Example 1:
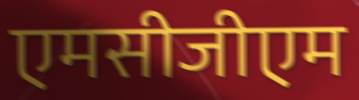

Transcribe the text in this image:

एमसीजीएम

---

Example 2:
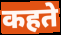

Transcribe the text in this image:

कहते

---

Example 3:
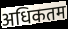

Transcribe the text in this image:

अधिकतम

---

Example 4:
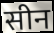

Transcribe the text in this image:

सीन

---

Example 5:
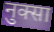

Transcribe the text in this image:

नुक्सा